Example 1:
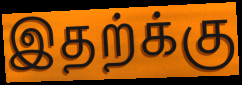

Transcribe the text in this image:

இதற்க்கு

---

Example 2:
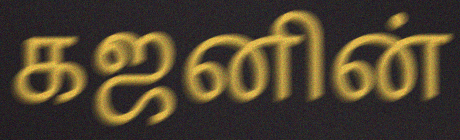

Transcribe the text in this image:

கஜனின்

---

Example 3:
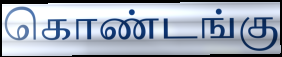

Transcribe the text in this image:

கொண்டங்கு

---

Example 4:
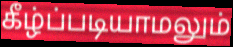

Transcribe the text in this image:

கீழ்ப்படியாமலும்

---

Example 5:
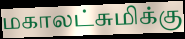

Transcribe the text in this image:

மகாலட்சுமிக்கு